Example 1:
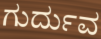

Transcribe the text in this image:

ಗುರ್ದುವ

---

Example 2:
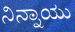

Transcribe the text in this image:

ನಿನ್ನಾಯು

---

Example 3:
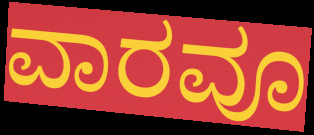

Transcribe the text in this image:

ವಾರವೂ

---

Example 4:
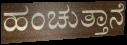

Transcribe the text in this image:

ಹಂಚುತ್ತಾನೆ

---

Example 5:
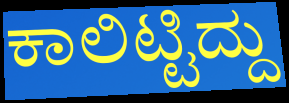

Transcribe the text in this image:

ಕಾಲಿಟ್ಟಿದ್ದು